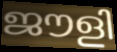
ജൗളി